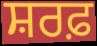
ਸ਼ਰਫ਼